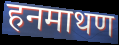
हनमाथण